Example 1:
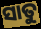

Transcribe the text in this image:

ସାତୁ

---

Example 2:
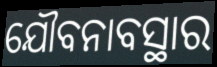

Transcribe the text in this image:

ଯୌବନାବସ୍ଥାର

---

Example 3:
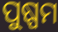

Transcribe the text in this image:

ପୁଷ୍ପମ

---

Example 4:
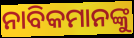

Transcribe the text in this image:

ନାବିକମାନଙ୍କୁ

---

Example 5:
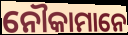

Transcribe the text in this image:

ନୌକାମାନେ